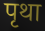
पृथा